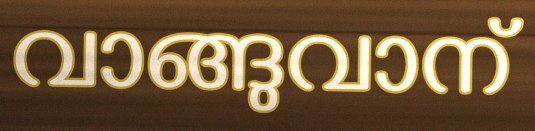
വാങ്ങുവാന്